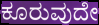
ಕೂರುವುದೇ